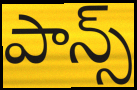
పాన్స్